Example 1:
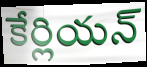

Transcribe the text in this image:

కేర్లియన్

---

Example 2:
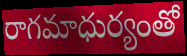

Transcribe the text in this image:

రాగమాధుర్యంతో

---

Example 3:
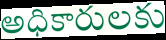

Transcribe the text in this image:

అధికారులకు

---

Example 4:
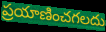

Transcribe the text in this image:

ప్రయాణించగలదు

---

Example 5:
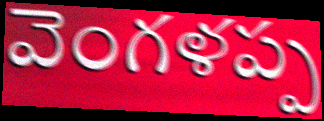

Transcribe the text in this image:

వెంగళప్ప